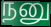
நனு